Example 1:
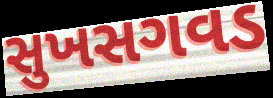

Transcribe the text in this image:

સુખસગવડ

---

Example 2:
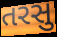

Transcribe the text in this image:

તરસુ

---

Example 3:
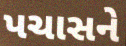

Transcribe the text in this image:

પચાસને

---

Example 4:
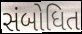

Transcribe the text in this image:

સંબોધિત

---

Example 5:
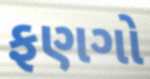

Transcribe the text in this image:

ફણગો